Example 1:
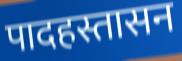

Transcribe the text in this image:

पादहस्तासन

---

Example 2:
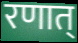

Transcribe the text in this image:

रणात्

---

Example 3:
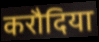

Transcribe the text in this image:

करौदिया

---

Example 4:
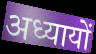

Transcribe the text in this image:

अध्यायों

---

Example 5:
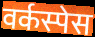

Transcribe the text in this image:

वर्कस्पेस